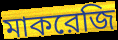
মাকরেজি